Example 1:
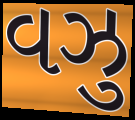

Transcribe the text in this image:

વઝુ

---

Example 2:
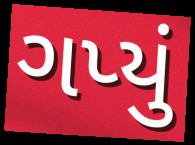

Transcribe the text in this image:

ગપ્યું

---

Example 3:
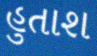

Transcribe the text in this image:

હુતાશ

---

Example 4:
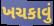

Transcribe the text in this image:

ખચકાવું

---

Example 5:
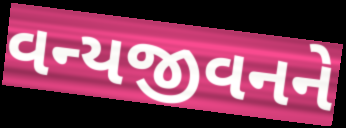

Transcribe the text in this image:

વન્યજીવનને